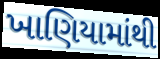
ખાણિયામાંથી